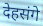
देहसंगे